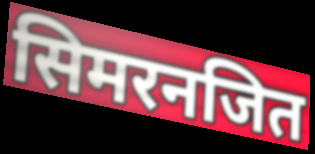
सिमरनजित